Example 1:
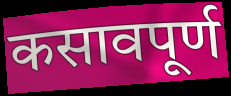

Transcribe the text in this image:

कसावपूर्ण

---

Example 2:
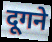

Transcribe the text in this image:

दूगने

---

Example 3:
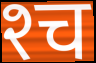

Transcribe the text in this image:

श्च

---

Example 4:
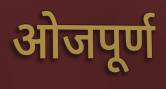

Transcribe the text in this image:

ओजपूर्ण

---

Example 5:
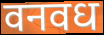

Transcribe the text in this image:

वनवध